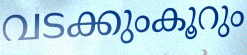
വടക്കുംകൂറും